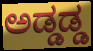
ಅಡ್ಡಡ್ಡ